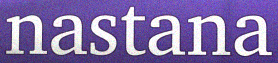
nastana